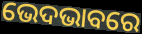
ଭେଦଭାବରେ